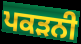
ਪਕੜਨੀ